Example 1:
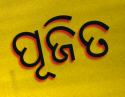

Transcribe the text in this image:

ପୂଜିତ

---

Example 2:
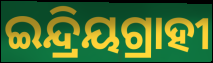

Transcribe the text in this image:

ଇନ୍ଦ୍ରିୟଗ୍ରାହୀ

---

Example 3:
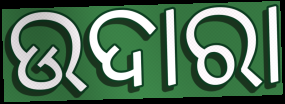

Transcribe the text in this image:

ଉଦାରା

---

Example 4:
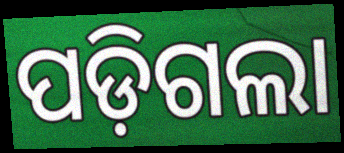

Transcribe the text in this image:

ପଡ଼ିଗଲା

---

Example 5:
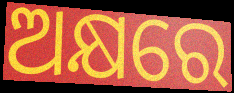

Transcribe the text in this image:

ଅକ୍ଷରେ